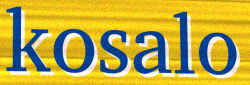
kosalo